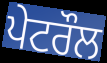
ਪੇਟਰੌਲ